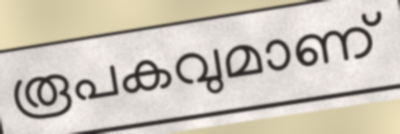
രൂപകവുമാണ്